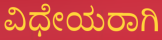
ವಿಧೇಯರಾಗಿ